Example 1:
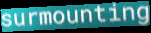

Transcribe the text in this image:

surmounting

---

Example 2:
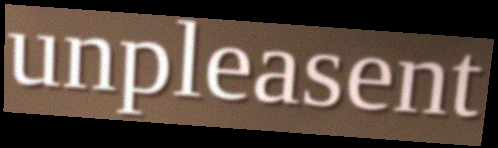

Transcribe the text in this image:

unpleasent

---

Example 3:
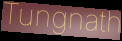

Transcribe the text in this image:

Tungnath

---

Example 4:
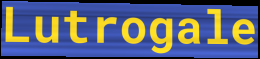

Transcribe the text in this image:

Lutrogale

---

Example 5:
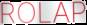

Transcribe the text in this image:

ROLAP